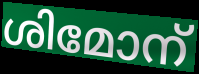
ശിമോന്